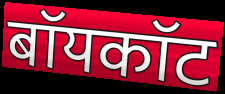
बॉयकॉट